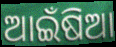
ଆଇଁଷିଆ